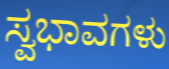
ಸ್ವಭಾವಗಳು